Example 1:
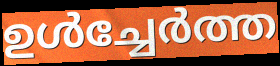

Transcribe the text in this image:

ഉൾച്ചേർത്ത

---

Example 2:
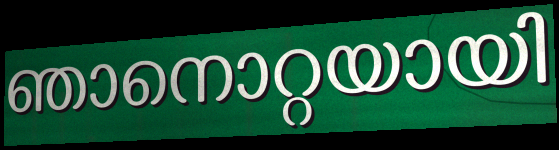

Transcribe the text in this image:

ഞാനൊറ്റയായി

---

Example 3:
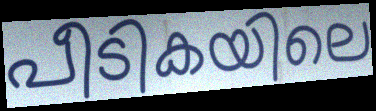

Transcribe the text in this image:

പീടികയിലെ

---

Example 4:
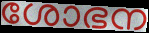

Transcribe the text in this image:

ശോഭന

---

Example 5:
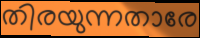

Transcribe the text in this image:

തിരയുന്നതാരേ